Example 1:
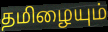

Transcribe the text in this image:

தமிழையும்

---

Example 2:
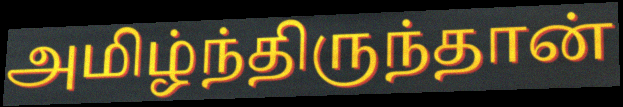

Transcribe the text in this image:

அமிழ்ந்திருந்தான்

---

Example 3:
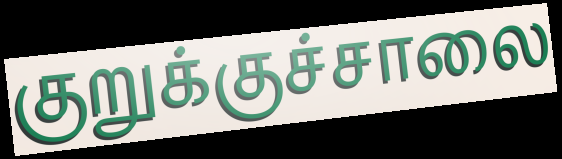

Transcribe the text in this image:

குறுக்குச்சாலை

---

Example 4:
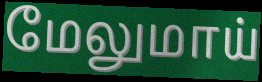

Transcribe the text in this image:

மேலுமாய்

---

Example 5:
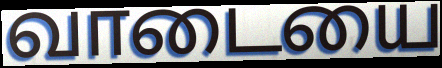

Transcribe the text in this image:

வாடையை